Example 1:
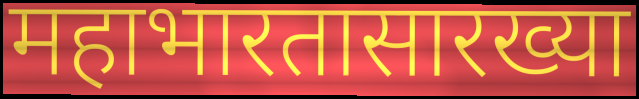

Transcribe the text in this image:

महाभारतासारख्या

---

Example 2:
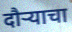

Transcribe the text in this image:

दौऱ्याचा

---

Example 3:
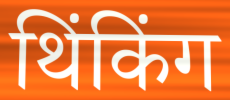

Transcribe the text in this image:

थिंकिंग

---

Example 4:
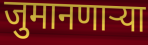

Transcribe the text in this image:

जुमानणार्‍या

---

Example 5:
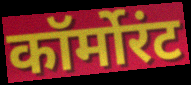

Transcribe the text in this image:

कॉर्मोरंट